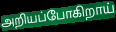
அறியப்போகிறாய்